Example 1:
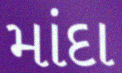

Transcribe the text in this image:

માંદા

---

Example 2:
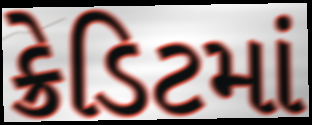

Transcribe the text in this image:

ક્રેડિટમાં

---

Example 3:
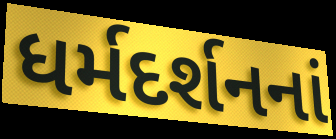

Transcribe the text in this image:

ધર્મદર્શનનાં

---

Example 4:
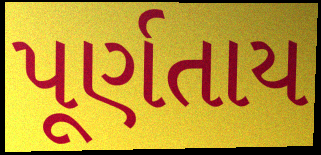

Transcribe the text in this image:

પૂર્ણતાય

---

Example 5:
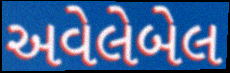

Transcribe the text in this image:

અવેલેબેલ